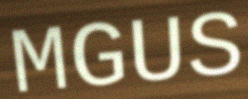
MGUS